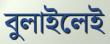
বুলাইলেই